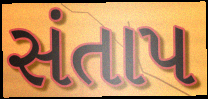
સંતાપ